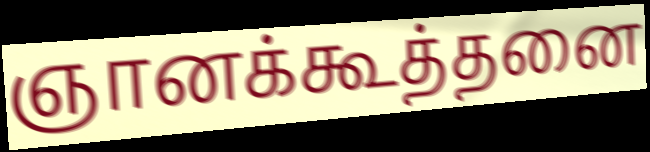
ஞானக்கூத்தனை